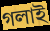
গলাই